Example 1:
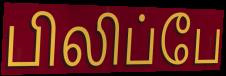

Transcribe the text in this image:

பிலிப்பே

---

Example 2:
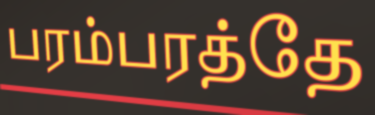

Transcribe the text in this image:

பரம்பரத்தே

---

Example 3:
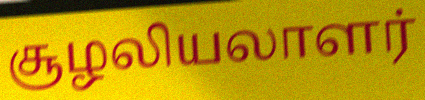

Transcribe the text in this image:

சூழலியலாளர்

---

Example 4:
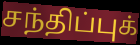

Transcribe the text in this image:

சந்திப்புக்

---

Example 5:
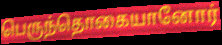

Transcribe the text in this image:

பெருந்தொகையானோர்